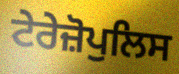
ਟੇਰੇਜ਼ੋਪੁਲਿਸ